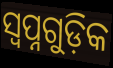
ସ୍ଵପ୍ନଗୁଡ଼ିକ